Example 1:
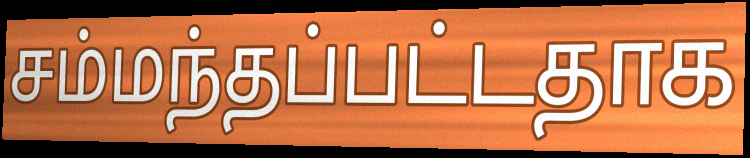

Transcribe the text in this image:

சம்மந்தப்பட்டதாக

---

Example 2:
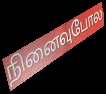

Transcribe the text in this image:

நினைவுபோல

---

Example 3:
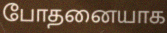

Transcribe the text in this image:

போதனையாக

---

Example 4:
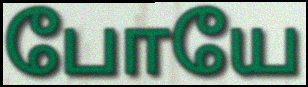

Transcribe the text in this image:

போயே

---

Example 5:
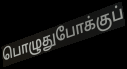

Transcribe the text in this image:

பொழுதுபோக்குப்